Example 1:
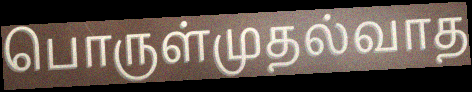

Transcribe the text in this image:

பொருள்முதல்வாத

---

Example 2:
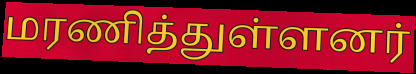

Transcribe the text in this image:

மரணித்துள்ளனர்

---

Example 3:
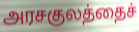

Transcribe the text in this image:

அரசகுலத்தைச்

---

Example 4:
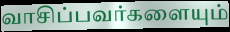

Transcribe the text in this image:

வாசிப்பவர்களையும்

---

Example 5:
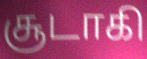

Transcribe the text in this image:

சூடாகி